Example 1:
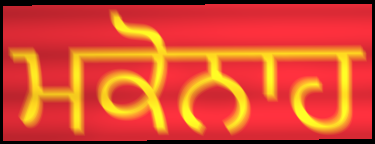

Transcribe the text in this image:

ਮਕੋਨਾਹ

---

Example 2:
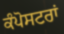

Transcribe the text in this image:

ਕੰਪੋਸਟਰਾਂ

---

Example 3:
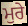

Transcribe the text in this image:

ਮੁਰੇ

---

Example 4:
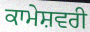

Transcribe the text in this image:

ਕਾਮੇਸ਼ਵਰੀ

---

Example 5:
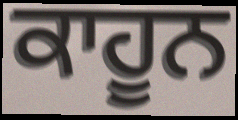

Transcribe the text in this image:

ਕਾਹੂਨ